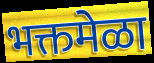
भक्तमेळा